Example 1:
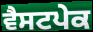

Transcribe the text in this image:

ਵੈਸਟਪੇਕ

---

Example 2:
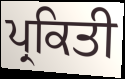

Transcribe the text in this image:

ਪ੍ਰਕਿਤੀ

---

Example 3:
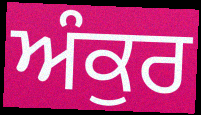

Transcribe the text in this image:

ਅੰਕੁਰ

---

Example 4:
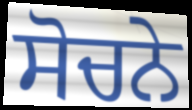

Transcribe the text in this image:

ਸੋਚਨੇ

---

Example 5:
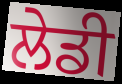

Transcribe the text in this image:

ਲੇਡੀ